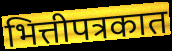
भित्तीपत्रकात